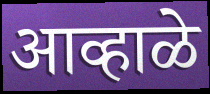
आव्हाळे